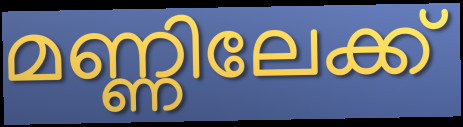
മണ്ണിലേക്ക്